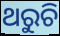
ଥରୁଚି